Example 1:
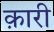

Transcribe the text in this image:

क़ारी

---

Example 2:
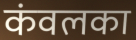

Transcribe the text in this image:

कंवलका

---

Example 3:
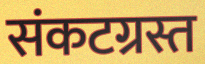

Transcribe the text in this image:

संकटग्रस्त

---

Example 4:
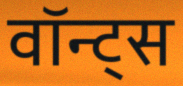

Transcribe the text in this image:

वॉन्ट्स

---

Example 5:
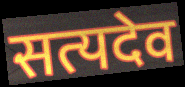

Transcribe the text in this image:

सत्‍यदेव